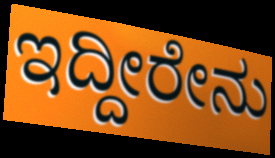
ಇದ್ದೀರೇನು